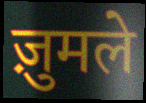
ज़ुमले